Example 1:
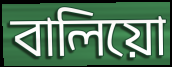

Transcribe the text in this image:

বালিয়ো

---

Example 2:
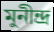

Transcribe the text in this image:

মুনীন্দ্ৰ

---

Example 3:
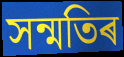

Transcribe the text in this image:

সন্মতিৰ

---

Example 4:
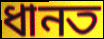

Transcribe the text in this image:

ধানত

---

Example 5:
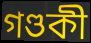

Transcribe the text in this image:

গণ্ডকী